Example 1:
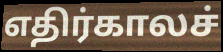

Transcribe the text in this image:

எதிர்காலச்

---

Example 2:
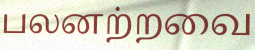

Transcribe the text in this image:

பலனற்றவை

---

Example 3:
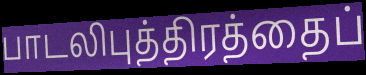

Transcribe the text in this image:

பாடலிபுத்திரத்தைப்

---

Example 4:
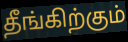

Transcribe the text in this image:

தீங்கிற்கும்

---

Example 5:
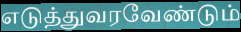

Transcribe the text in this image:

எடுத்துவரவேண்டும்